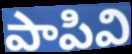
పాపివి